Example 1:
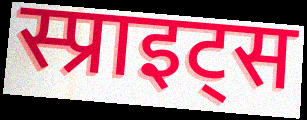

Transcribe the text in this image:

स्प्राइट्स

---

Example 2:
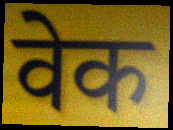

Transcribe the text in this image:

वेक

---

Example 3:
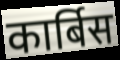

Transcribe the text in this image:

कार्बिस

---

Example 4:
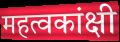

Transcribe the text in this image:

महत्वकांक्षी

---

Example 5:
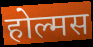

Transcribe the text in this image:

होल्मस